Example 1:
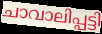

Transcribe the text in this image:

ചാവാലിപ്പട്ടി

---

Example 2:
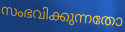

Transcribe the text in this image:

സംഭവിക്കുന്നതോ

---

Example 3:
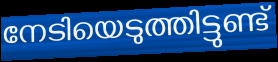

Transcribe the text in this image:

നേടിയെടുത്തിട്ടുണ്ട്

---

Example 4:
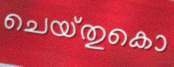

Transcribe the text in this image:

ചെയ്‌തുകൊ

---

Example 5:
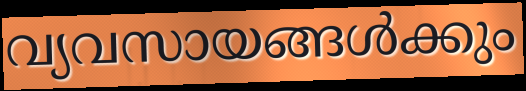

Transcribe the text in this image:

വ്യവസായങ്ങൾക്കും